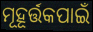
ମୂହୂର୍ତ୍ତକପାଇଁ